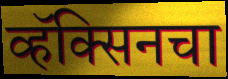
व्हॅक्सिनचा